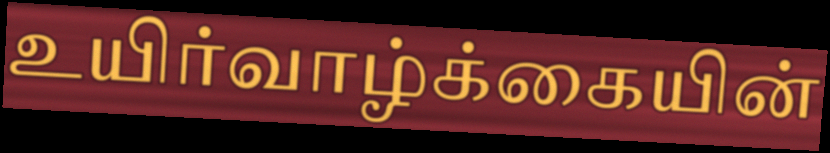
உயிர்வாழ்க்கையின்